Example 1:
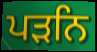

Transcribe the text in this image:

ਪੜਨਿ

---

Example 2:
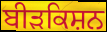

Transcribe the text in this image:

ਬੀੜਕਿਸ਼ਨ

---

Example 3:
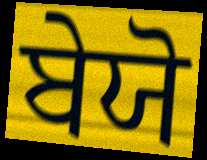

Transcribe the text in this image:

ਬੇਯੋ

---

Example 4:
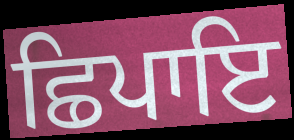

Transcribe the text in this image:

ਛਿਪਾਇ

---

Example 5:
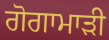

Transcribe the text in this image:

ਗੋਗਾਮਾੜੀ